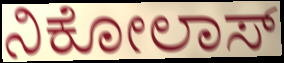
ನಿಕೋಲಾಸ್